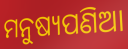
ମନୁଷ୍ୟପଣିଆ